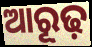
ଆରୂଢ଼